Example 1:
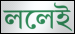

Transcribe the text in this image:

ললেই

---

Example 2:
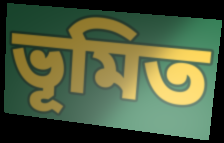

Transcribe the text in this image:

ভূমিত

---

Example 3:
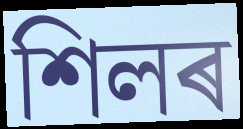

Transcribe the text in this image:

শিলৰ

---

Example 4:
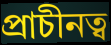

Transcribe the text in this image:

প্ৰাচীনত্ব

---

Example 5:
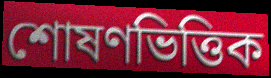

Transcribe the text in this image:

শোষণভিত্তিক